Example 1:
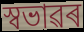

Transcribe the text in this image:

স্বভাৱৰ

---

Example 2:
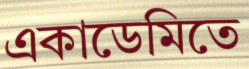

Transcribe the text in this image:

একাডেমিতে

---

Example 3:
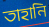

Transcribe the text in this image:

তাহানি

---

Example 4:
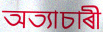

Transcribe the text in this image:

অত্যাচাৰী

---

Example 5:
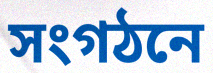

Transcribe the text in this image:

সংগঠনে